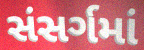
સંસર્ગમાં